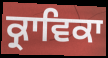
ਕ੍ਰਾਵਿਕਾ